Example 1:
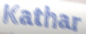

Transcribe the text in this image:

Kathar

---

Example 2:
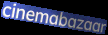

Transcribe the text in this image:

cinemabazaar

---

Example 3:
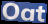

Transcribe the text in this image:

Oat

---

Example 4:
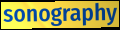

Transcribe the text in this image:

sonography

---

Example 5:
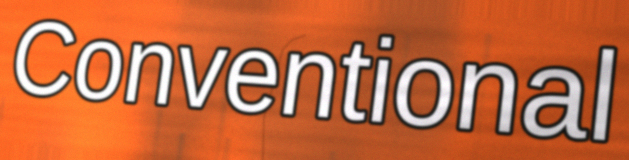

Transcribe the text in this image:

Conventional